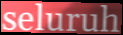
seluruh